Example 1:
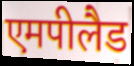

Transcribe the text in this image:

एमपीलैड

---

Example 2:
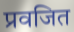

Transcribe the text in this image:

प्रवजित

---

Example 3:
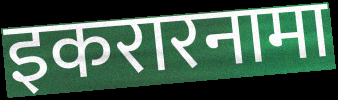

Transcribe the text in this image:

इकरारनामा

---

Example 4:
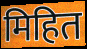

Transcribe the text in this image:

मिहित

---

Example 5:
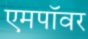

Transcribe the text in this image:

एमपॉवर